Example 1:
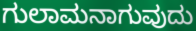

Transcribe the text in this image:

ಗುಲಾಮನಾಗುವುದು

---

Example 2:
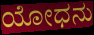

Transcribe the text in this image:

ಯೋಧನು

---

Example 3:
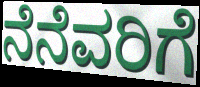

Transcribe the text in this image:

ನೆನೆವರಿಗೆ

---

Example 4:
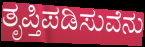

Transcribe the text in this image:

ತೃಪ್ತಿಪಡಿಸುವೆನು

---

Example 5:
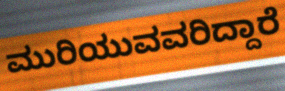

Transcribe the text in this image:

ಮುರಿಯುವವರಿದ್ದಾರೆ